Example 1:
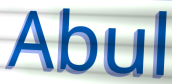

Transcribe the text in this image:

Abul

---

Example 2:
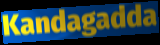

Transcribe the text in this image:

Kandagadda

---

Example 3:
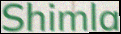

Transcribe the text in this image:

Shimla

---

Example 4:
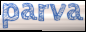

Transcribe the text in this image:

parva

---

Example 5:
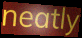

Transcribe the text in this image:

neatly